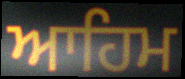
ਆਹਿਮ